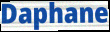
Daphane